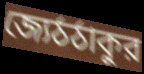
জ্যেঠঠাকুর